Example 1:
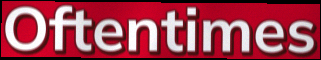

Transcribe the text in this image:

Oftentimes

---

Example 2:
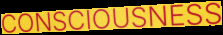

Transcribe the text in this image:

CONSCIOUSNESS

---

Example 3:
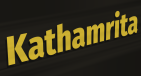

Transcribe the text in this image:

Kathamrita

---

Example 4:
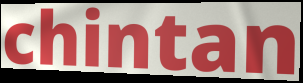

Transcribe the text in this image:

chintan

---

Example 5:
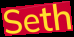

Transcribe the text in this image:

Seth